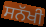
ਸਨੱਖੀ